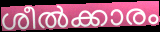
ശീൽക്കാരം